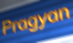
Pragyan